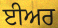
ਈਅਰ